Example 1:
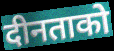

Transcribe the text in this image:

दीनताको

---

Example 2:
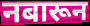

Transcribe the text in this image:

नबारून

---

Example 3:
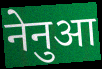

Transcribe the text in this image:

नेनुआ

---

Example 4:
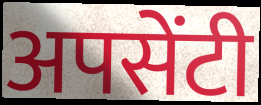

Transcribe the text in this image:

अपसेंटी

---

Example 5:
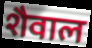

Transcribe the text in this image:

शैवाल